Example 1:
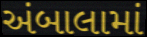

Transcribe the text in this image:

અંબાલામાં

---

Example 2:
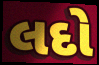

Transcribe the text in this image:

લદો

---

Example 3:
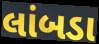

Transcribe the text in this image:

લાંબડા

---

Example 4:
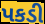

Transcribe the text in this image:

પકડી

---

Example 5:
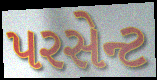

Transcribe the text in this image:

પરસેન્ટ